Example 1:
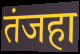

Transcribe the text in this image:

तंजहा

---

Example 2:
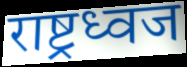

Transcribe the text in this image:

राष्ट्रध्वज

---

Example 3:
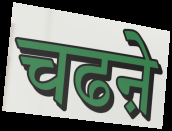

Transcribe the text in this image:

चढऩे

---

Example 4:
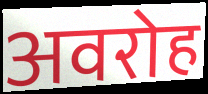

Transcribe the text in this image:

अवरोह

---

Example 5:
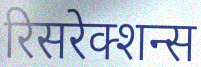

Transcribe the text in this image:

रिसरेक्शन्स